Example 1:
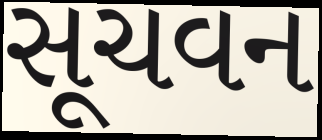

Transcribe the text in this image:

સૂચવન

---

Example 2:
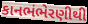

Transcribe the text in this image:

કાનભંભેરણીથી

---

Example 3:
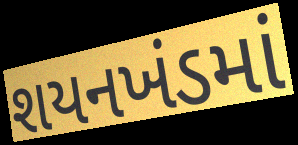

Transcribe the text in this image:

શયનખંડમાં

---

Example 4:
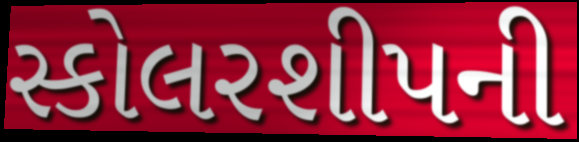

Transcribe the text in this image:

સ્કોલરશીપની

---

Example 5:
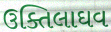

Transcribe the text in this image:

ઉક્તિલાઘવ